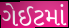
ગેઈટમાં